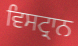
ਵਿਸਟ੍ਰਾਨ